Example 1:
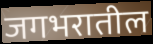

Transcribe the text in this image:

जगभरातील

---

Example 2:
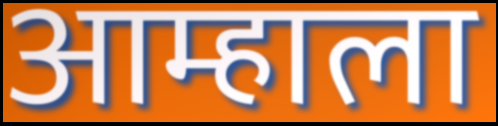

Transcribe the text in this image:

आम्हाला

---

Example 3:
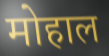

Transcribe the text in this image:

मोहाल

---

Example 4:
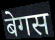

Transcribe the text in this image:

बेगस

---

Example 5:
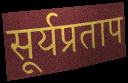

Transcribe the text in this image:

सूर्यप्रताप